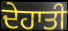
ਦੇਹਾਤੀ